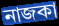
নাজকা